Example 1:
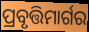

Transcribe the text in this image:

ପ୍ରବୃତ୍ତିମାର୍ଗର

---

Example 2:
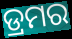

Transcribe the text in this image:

ଡ୍ରମର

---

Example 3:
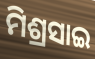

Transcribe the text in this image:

ମିଶ୍ରସାଇ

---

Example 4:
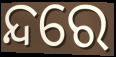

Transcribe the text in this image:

ନ୍ଦରେ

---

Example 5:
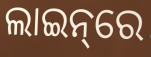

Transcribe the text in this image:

ଲାଇନ୍‌ରେ